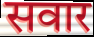
सवार